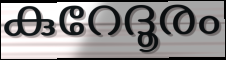
കുറേദൂരം